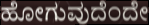
ಹೋಗುವುದೆಂದೇ